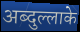
अब्दुल्लाके